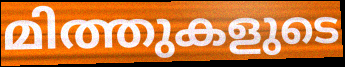
മിത്തുകളുടെ